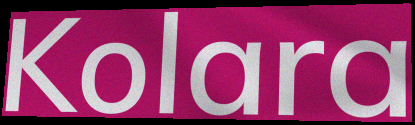
Kolara